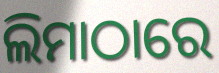
ଲିମାଠାରେ